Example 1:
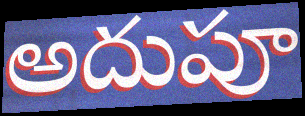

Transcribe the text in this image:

అదుపూ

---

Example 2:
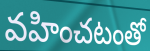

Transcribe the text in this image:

వహించటంతో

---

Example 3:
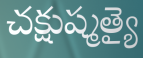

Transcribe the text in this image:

చక్షుష్మత్యై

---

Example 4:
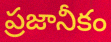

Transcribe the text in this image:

ప్రజానీకం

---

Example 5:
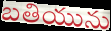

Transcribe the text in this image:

బతియును